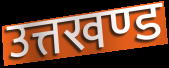
उत्तखण्ड